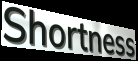
Shortness